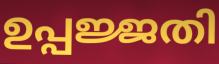
ഉപ്പജ്ജതി